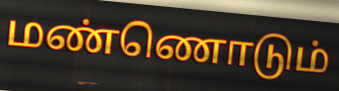
மண்ணொடும்